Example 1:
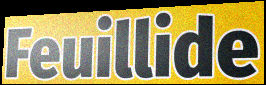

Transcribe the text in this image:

Feuillide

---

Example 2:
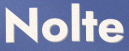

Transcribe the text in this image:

Nolte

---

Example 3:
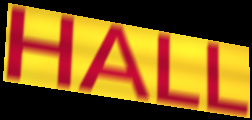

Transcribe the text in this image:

HALL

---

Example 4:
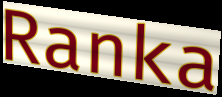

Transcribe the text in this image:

Ranka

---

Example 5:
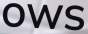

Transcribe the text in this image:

OWS